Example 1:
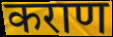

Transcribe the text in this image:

कराण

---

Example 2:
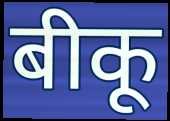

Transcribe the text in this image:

बीकू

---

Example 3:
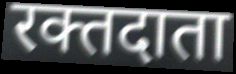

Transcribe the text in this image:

रक्तदाता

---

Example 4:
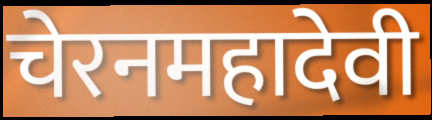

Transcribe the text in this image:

चेरनमहादेवी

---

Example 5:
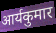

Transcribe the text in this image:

आर्यकुमार